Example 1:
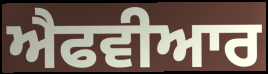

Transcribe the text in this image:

ਐਫਵੀਆਰ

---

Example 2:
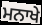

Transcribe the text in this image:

ਮਨਾਖੇ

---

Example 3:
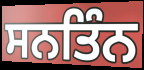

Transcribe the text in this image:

ਸਨਤਿੰਨ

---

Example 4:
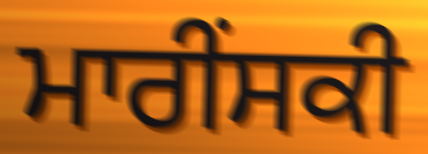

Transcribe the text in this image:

ਮਾਰੀੰਸਕੀ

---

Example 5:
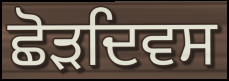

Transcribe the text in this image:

ਛੋੜਦਿਵਸ